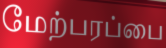
மேற்பரப்பை